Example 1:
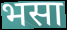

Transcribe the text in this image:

भसा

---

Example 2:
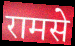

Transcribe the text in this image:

रामसे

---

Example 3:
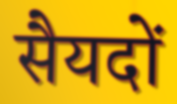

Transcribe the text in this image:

सैयदों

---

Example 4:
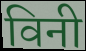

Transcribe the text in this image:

विनी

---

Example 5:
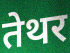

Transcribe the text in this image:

तेथर